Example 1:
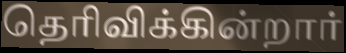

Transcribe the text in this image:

தெரிவிக்கின்றார்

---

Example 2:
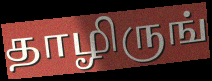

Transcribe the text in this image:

தாழிருங்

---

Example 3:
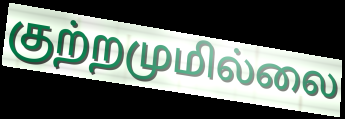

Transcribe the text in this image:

குற்றமுமில்லை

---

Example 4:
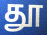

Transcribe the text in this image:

தூ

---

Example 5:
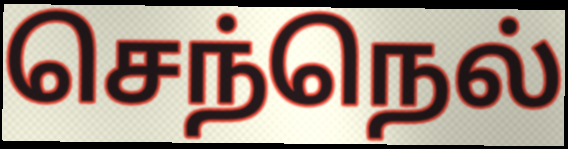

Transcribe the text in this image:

செந்நெல்